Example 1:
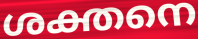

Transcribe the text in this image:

ശക്തനെ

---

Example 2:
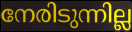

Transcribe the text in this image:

നേരിടുന്നില്ല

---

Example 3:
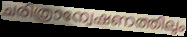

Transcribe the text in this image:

ചരിത്രാന്വേഷണത്തിലും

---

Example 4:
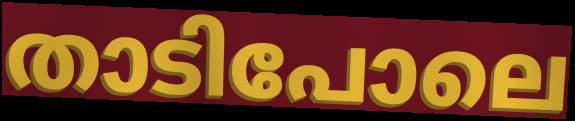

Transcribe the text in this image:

താടിപോലെ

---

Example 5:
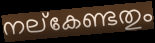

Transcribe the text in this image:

നല്കേണ്ടതും